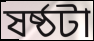
ষষ্ঠটা